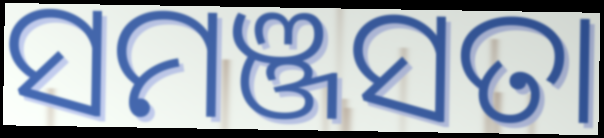
ସମଞ୍ଜସତା